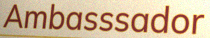
Ambasssador